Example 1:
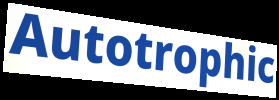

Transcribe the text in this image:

Autotrophic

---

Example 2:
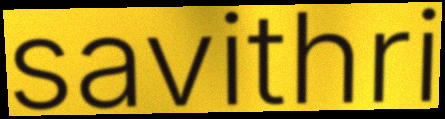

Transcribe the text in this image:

savithri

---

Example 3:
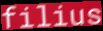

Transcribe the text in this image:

filius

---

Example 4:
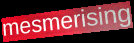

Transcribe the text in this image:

mesmerising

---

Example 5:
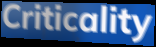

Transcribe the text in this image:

Criticality